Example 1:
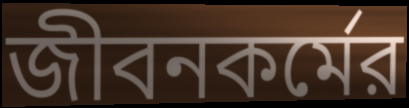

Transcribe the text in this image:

জীবনকর্মের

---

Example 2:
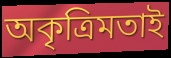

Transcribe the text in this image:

অকৃত্রিমতাই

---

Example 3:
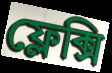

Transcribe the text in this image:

ফ্লেক্সি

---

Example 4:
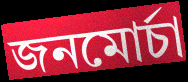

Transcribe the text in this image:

জনমোর্চা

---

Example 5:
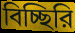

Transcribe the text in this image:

বিচ্ছিরি